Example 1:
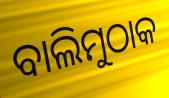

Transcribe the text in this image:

ବାଲିମୁଠାକ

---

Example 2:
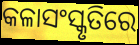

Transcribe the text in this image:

କଳାସଂସ୍କୃତିରେ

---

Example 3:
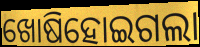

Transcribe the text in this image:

ଖୋଷିହୋଇଗଲା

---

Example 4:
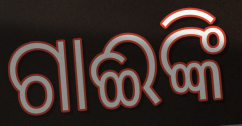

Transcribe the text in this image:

ଗାଈଙ୍କି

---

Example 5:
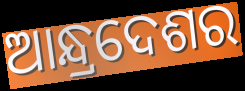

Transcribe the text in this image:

ଆନ୍ଧ୍ରଦେଶର